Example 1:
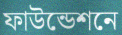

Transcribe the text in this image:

ফাউন্ডেশনে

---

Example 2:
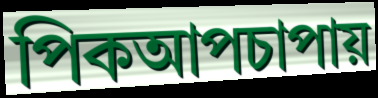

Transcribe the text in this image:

পিকআপচাপায়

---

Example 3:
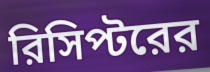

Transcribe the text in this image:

রিসিপ্টরের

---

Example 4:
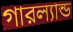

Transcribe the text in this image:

গারল্যান্ড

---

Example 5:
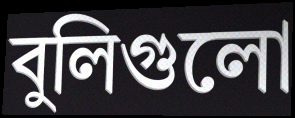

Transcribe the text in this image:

বুলিগুলো